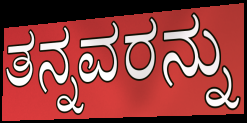
ತನ್ನವರನ್ನು